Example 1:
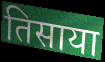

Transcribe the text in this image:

तिसाया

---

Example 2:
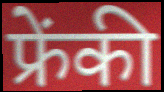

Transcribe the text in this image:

फ्रेंकी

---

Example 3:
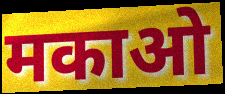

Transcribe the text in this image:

मकाओ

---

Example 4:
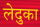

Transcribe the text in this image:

लेदुका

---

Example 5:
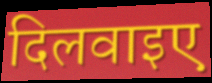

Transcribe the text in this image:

दिलवाइए